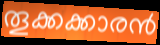
തൂക്കക്കാരൻ